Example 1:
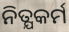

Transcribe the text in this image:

ନିତ୍ଯକର୍ମ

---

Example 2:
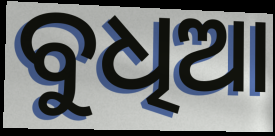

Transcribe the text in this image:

ବୁଧିଆ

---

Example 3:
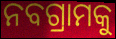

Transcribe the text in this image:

ନବଗ୍ରାମକୁ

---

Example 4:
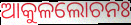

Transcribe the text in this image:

ଆକୁଳଲୋଚନଃ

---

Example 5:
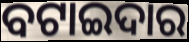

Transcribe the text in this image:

ବଟାଇଦାର